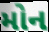
મોન